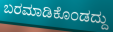
ಬರಮಾಡಿಕೊಂಡದ್ದು